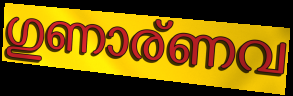
ഗുണാര്ണവ